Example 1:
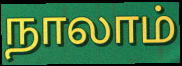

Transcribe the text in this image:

நாலாம்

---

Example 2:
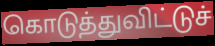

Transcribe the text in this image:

கொடுத்துவிட்டுச்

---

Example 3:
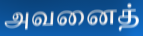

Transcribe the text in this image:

அவனைத்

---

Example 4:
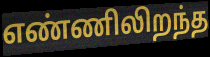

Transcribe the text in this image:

எண்ணிலிறந்த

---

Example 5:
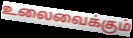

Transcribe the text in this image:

உலைவைக்கும்